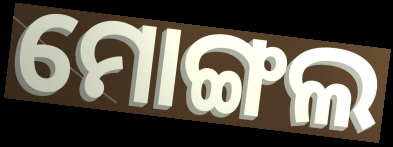
ମୋଙ୍ଗଲ